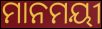
ମାନମୟୀ